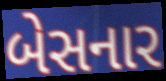
બેસનાર